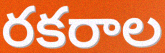
రకరాల